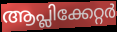
ആപ്ലിക്കേറ്റർ